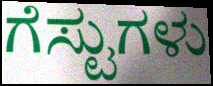
ಗೆಸ್ಟುಗಳು